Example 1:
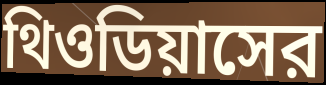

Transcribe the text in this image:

থিওডিয়াসের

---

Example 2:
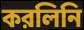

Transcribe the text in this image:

করলিনি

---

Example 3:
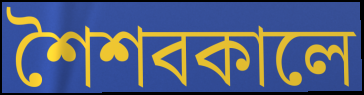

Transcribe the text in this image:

শৈশবকালে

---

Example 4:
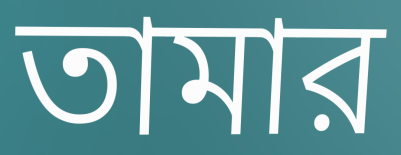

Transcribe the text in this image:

তামার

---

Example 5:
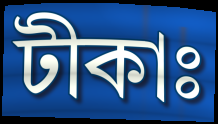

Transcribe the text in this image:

টীকাঃ